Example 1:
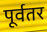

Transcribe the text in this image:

पूर्वतर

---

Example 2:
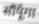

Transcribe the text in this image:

सौंपूँगा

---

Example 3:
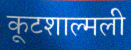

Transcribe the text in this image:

कूटशाल्मली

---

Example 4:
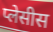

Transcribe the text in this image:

प्लेसीस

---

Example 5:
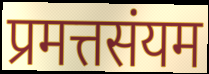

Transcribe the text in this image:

प्रमत्तसंयम